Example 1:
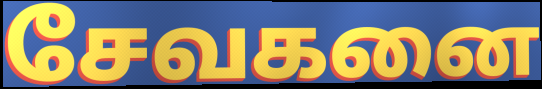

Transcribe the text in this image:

சேவகனை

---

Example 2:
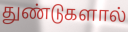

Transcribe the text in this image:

துண்டுகளால்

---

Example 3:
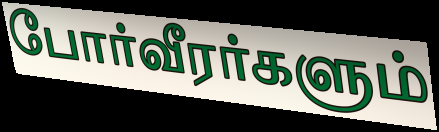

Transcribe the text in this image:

போர்வீரர்களும்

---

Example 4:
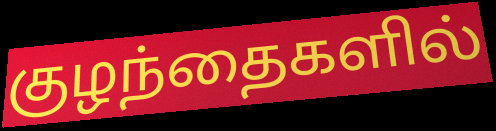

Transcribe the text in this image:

குழந்தைகளில்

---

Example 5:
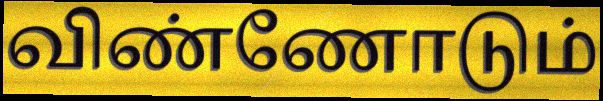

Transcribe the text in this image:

விண்ணோடும்